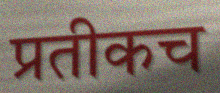
प्रतीकच